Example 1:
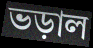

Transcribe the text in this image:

ভড়াল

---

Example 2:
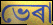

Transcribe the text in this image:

ভেৰা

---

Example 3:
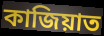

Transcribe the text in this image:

কাজিয়াত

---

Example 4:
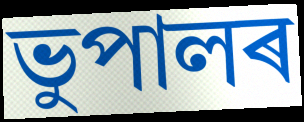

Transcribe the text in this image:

ভুপালৰ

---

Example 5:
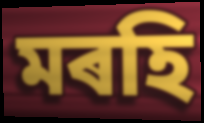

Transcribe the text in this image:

মৰহি